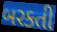
બરકતી